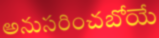
అనుసరించబోయే